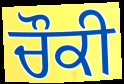
ਚੌਕੀ